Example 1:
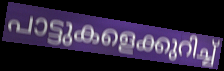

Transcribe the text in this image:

പാട്ടുകളെക്കുറിച്ച്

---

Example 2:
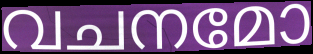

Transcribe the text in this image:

വചനമോ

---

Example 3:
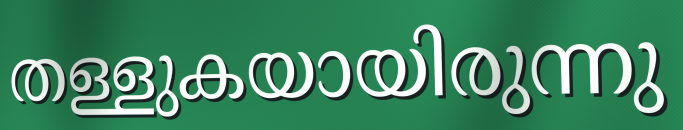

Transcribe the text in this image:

തള്ളുകയായിരുന്നു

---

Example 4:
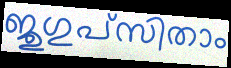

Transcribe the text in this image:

ജുഗുപ്സിതാം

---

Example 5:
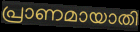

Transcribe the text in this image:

പ്രാണമായാതി